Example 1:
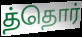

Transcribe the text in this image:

த்தொர்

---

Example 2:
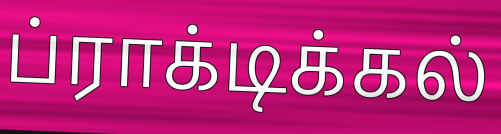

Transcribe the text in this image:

ப்ராக்டிக்கல்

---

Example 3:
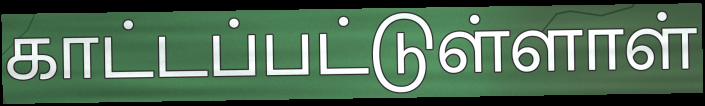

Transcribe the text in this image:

காட்டப்பட்டுள்ளாள்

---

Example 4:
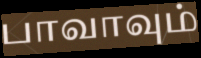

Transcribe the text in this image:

பாவாவும்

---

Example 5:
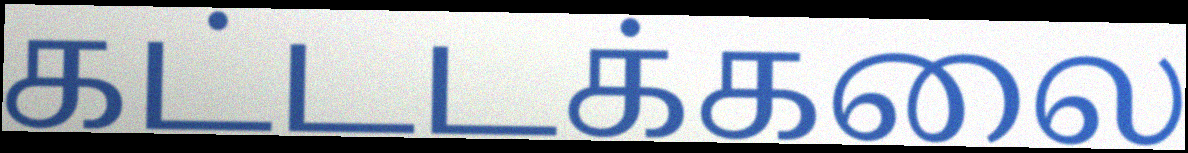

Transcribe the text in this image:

கட்டடக்கலை